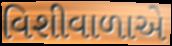
વિશીવાળાએ